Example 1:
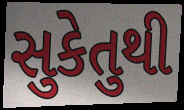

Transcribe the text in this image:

સુકેતુથી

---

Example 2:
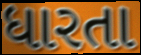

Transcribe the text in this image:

ધારતા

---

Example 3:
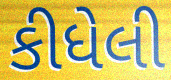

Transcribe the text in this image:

કીધેલી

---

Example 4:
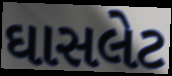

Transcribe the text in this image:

ઘાસલેટ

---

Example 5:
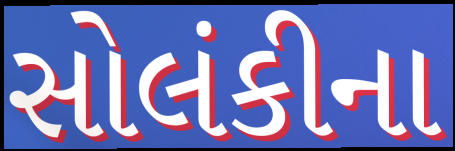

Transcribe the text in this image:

સોલંકીના